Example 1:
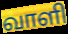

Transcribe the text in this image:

வாளி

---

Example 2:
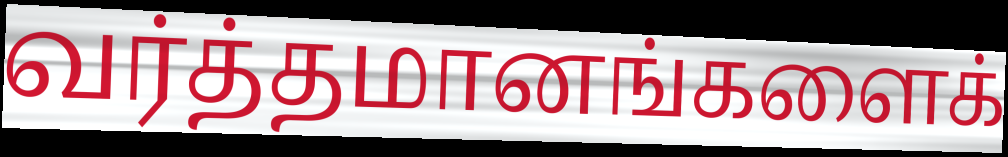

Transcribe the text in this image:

வர்த்தமானங்களைக்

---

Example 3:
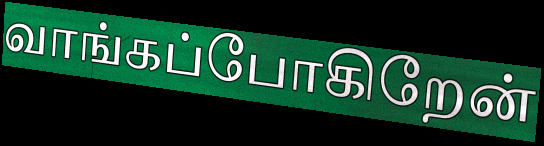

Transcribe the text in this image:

வாங்கப்போகிறேன்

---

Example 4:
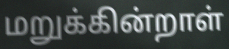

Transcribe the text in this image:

மறுக்கின்றாள்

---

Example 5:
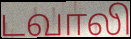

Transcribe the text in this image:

டவாலி